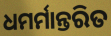
ଧମର୍ମାନ୍ତରିତ